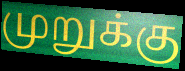
முறுக்கு